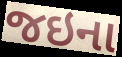
જઇના